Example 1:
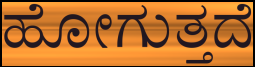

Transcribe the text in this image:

ಹೋಗುತ್ತದೆ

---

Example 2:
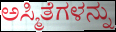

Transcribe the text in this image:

ಅಸ್ಮಿತೆಗಳನ್ನು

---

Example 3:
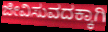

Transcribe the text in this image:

ಜೀವಿಸುವದಕ್ಕಾಗಿ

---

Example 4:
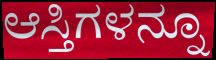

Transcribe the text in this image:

ಆಸ್ತಿಗಳನ್ನೂ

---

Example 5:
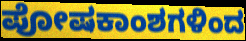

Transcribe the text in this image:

ಪೋಷಕಾಂಶಗಳಿಂದ